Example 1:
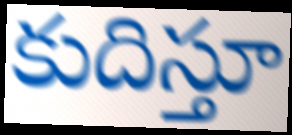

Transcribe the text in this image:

కుదిస్తూ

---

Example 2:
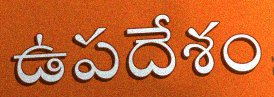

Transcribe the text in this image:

ఉపదేశం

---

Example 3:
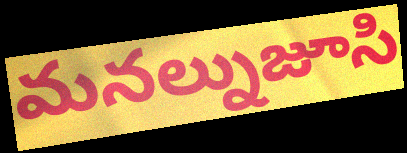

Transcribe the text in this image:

మనల్నుజూసి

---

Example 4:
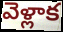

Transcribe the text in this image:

వెళ్లాక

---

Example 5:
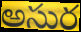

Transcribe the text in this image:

అసుర